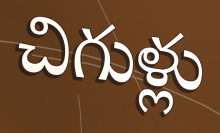
చిగుళ్లు